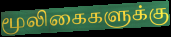
மூலிகைகளுக்கு